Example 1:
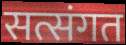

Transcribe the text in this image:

सत्संगत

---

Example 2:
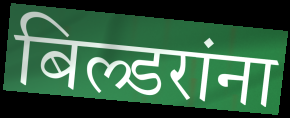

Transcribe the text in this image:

बिल्डरांना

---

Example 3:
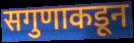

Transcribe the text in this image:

सगुणाकडून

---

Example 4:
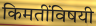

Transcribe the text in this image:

किमतींविषयी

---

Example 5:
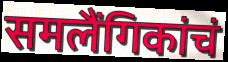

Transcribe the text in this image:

समलैंगिकांचं